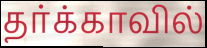
தர்க்காவில்